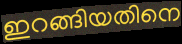
ഇറങ്ങിയതിനെ